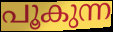
പൂകുന്ന